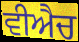
ਵੀਐਚ